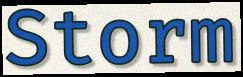
Storm